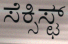
ಸೆಕ್ಸಿಸ್ಟ್